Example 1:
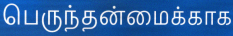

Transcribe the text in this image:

பெருந்தன்மைக்காக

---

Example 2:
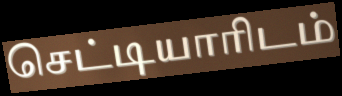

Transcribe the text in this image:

செட்டியாரிடம்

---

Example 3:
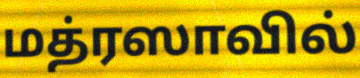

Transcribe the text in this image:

மத்ரஸாவில்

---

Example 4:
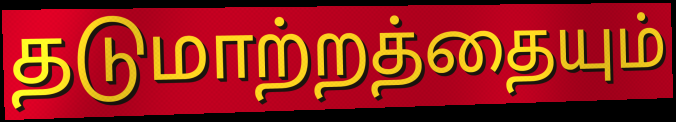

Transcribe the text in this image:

தடுமாற்றத்தையும்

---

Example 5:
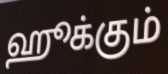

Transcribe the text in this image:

ஹூக்கும்